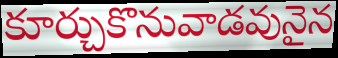
కూర్చుకొనువాడవునైన